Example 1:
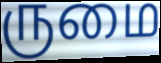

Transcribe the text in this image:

ருமை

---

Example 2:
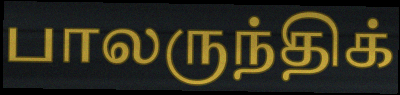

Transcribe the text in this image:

பாலருந்திக்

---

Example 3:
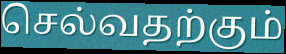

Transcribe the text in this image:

செல்வதற்கும்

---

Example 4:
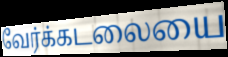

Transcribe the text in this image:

வேர்க்கடலையை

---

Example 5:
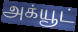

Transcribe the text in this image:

அக்யூட்